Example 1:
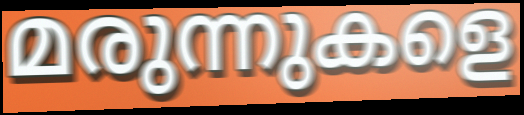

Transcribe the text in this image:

മരുന്നുകളെ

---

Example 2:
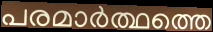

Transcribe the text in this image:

പരമാർത്ഥത്തെ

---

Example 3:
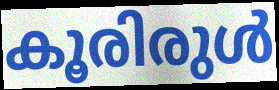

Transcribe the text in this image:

കൂരിരുൾ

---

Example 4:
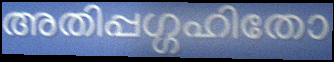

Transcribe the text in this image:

അതിപ്പഗ്ഗഹിതോ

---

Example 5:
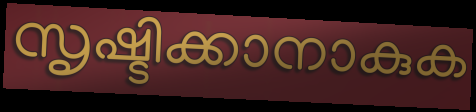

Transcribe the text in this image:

സൃഷ്ടിക്കാനാകുക